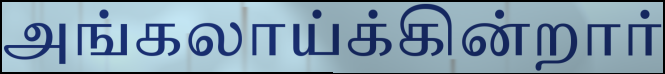
அங்கலாய்க்கின்றார்